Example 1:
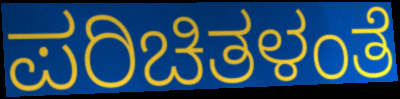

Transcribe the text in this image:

ಪರಿಚಿತಳಂತೆ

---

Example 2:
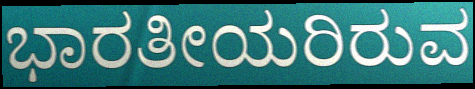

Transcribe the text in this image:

ಭಾರತೀಯರಿರುವ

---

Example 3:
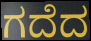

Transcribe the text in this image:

ಗದೆದ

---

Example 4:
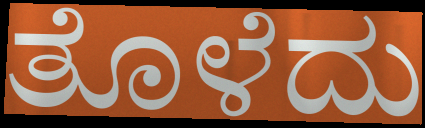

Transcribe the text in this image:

ತೊಳೆದು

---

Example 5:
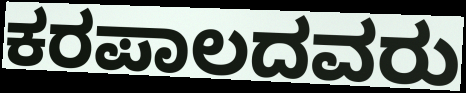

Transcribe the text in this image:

ಕರಪಾಲದವರು